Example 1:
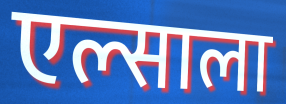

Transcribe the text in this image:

एल्साला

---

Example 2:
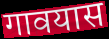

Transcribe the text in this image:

गावयास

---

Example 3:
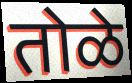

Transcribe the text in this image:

तोळे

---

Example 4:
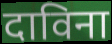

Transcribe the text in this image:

दाविना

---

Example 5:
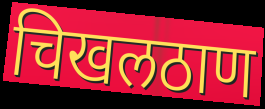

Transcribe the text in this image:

चिखलठाण